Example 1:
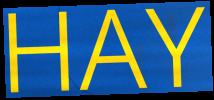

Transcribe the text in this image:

HAY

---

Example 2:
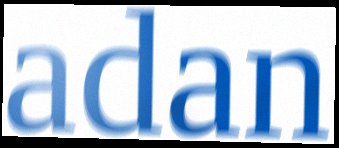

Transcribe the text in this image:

adan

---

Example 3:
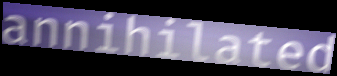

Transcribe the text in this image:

annihilated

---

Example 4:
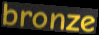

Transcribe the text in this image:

bronze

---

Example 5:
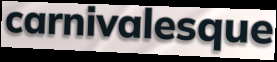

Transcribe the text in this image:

carnivalesque